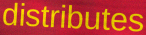
distributes